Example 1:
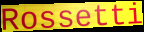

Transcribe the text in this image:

Rossetti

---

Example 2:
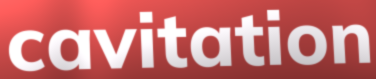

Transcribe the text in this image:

cavitation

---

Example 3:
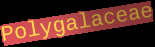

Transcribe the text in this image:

Polygalaceae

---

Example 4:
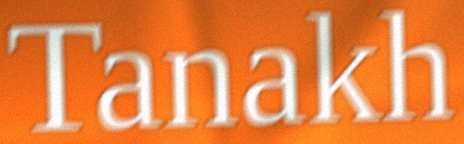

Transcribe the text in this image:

Tanakh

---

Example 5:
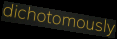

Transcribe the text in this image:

dichotomously